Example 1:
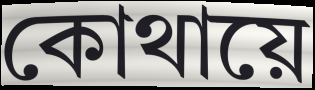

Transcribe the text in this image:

কোথায়ে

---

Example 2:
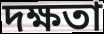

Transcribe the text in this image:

দক্ষতা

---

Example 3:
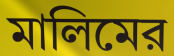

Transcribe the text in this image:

মালিমের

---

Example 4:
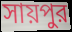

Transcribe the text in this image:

সায়পুর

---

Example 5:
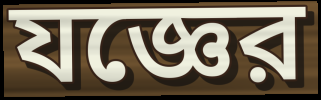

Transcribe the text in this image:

যজ্ঞের